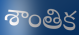
శాంతిక